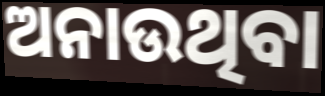
ଅନାଉଥିବା